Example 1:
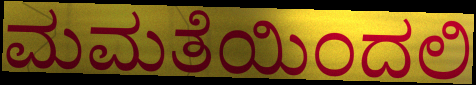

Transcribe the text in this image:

ಮಮತೆಯಿಂದಲಿ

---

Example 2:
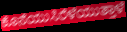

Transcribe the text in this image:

ಕೊನೆಯುಸಿರೆಳೆಯುತ್ತಾಳೆ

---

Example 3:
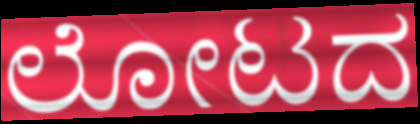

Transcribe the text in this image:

ಲೋಟದ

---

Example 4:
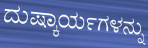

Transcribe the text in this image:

ದುಷ್ಕಾರ್ಯಗಳನ್ನು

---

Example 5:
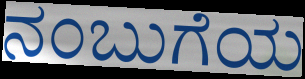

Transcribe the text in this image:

ನಂಬುಗೆಯ